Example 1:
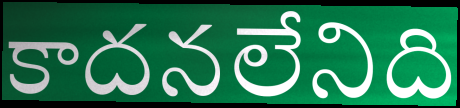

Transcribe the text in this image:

కాదనలేనిది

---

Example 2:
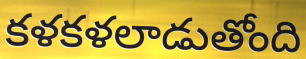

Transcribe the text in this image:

కళకళలాడుతోంది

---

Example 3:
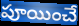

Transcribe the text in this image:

పూయించే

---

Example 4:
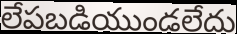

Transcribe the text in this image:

లేపబడియుండలేదు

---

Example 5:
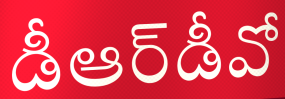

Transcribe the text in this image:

డీఆర్‌డీవో